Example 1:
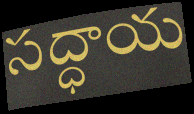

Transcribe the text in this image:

సద్ధాయ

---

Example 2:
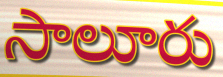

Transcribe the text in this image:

సాలూరు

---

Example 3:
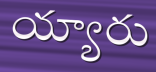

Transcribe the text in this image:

య్యారు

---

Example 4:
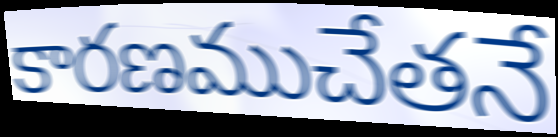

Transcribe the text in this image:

కారణముచేతనే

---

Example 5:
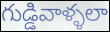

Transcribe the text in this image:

గుడ్డివాళ్ళలా